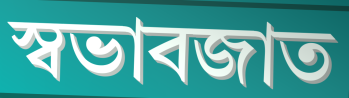
স্বভাবজাত